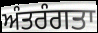
ਅੰਤਰੰਗਤਾ